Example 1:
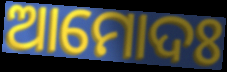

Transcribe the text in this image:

ଆମୋଦଃ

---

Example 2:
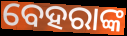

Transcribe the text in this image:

ବେହରାଙ୍କ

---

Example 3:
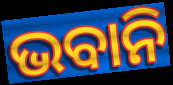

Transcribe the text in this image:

ଭବାନି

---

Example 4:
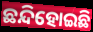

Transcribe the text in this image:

ଛନ୍ଦିହୋଇଛି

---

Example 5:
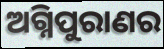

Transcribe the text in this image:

ଅଗ୍ନିପୁରାଣର